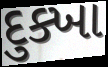
દુક્ખા